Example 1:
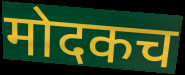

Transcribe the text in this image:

मोदकच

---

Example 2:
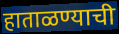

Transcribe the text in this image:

हाताळण्याची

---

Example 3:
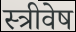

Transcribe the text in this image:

स्त्रीवेष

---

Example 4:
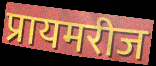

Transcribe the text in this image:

प्रायमरीज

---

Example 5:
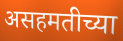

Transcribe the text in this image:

असहमतीच्या